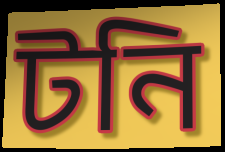
টনি